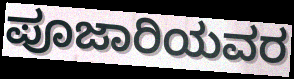
ಪೂಜಾರಿಯವರ